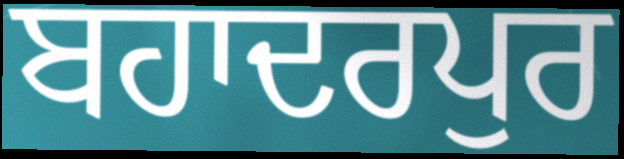
ਬਹਾਦਰਪੁਰ